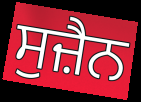
ਸੁਜ਼ੈਨ